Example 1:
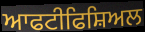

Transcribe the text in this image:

ਆਫਟੀਫਿਸ਼ਿਅਲ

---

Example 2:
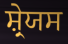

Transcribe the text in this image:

ਸ਼੍ਰੇਯਸ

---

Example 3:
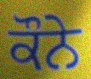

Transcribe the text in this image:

ਕੌਨੇ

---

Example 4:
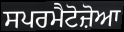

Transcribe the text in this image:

ਸਪਰਮੈਟੋਜ਼ੋਆ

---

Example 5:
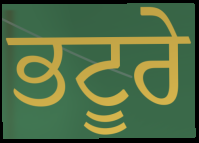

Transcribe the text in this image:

ਭਟੂਰੇ